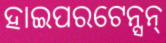
ହାଇପରଟେନ୍ସନ୍